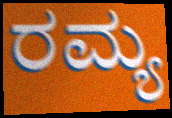
ರಮ್ಯ